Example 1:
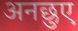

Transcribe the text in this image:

अनछुए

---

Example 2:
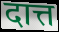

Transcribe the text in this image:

दात्त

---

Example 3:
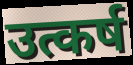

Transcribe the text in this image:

उत्कर्ष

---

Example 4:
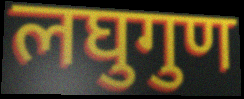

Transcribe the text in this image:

लघुगुण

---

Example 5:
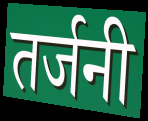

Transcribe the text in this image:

तर्जनी